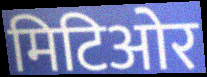
मिटिओर